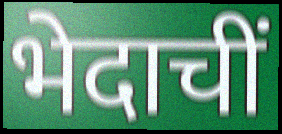
भेदाचीं